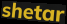
shetar